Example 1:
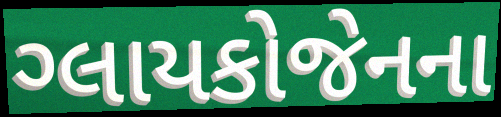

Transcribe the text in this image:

ગ્લાયકોજેનના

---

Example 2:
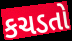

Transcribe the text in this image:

કચડતો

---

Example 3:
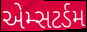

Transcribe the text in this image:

એમ્સટર્ડમ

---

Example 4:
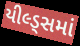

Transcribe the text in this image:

યીલ્ડ્સમાં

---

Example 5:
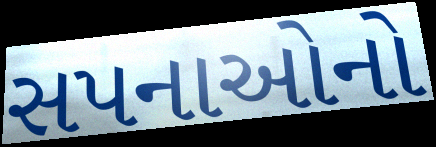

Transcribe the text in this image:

સપનાઓનો